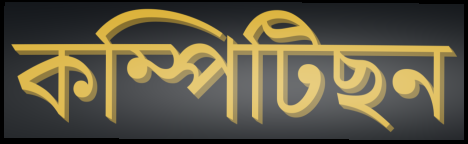
কম্পিটিছন